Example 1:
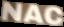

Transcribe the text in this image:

NAC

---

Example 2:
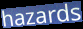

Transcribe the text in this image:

hazards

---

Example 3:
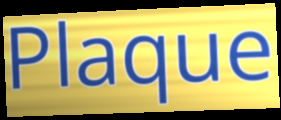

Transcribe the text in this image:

Plaque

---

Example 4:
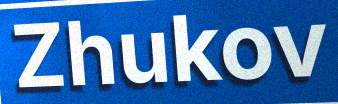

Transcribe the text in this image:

Zhukov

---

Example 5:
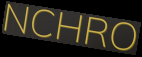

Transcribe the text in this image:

NCHRO